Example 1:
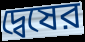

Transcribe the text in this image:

দ্বেষের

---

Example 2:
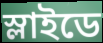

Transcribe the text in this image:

স্লাইডে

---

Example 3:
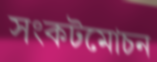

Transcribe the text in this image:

সংকটমোচন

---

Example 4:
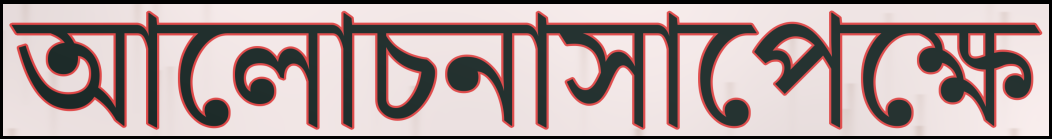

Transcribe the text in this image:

আলোচনাসাপেক্ষে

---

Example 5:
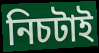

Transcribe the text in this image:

নিচটাই